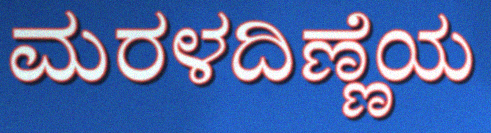
ಮರಳದಿಣ್ಣೆಯ